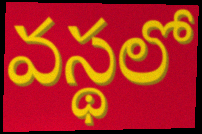
వస్థలో